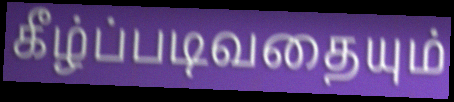
கீழ்ப்படிவதையும்